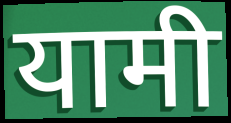
यामी